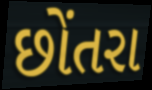
છોંતરા